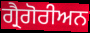
ਗ੍ਰੈਗੋਰੀਅਨ